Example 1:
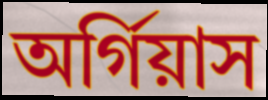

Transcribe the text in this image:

অর্গিয়াস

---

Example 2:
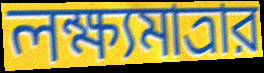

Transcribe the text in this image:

লক্ষ্যমাত্রার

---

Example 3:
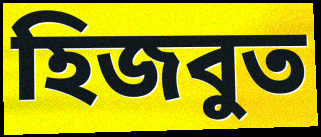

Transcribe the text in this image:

হিজবুত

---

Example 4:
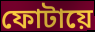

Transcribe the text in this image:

ফোটায়ে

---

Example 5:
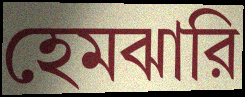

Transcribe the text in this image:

হেমঝারি